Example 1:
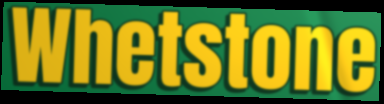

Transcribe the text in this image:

Whetstone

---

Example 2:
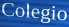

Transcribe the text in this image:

Colegio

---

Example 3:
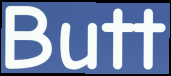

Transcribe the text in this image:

Butt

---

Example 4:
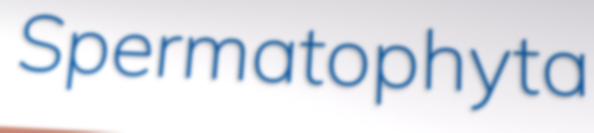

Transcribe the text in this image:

Spermatophyta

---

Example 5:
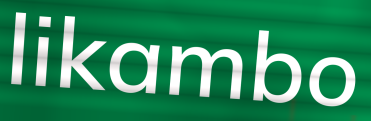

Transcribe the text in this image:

likambo